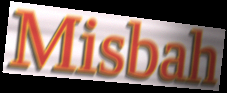
Misbah